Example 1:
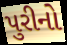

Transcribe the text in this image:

પુરીનો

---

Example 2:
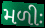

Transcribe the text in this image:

મળીઃ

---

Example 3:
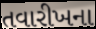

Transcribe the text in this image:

તવારીખના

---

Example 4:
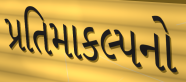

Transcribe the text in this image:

પ્રતિમાકલ્પનો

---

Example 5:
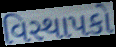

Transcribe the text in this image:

વિસ્થાપકો